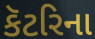
કૅટરિના